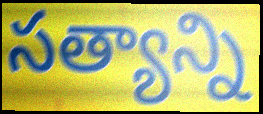
సత్యాన్ని